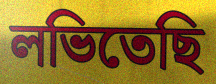
লভিতেছি